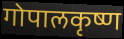
गोपालकृष्ण